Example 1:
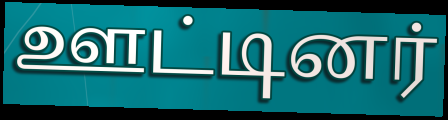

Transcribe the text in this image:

ஊட்டினர்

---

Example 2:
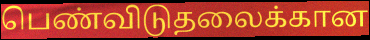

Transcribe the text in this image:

பெண்விடுதலைக்கான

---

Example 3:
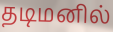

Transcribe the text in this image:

தடிமனில்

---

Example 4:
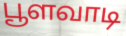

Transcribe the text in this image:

பூளவாடி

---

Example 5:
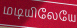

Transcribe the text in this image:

மடியிலேயே